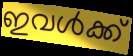
ഇവൾക്ക്